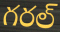
గరల్